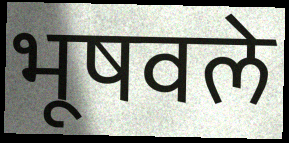
भूषवले